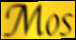
Mos